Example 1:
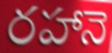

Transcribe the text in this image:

రహానె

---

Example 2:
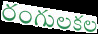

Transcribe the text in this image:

రంగులకల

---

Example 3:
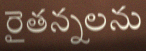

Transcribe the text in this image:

రైతన్నలను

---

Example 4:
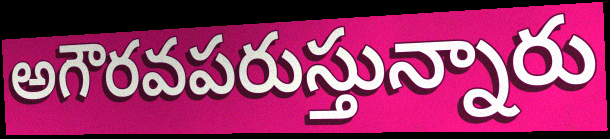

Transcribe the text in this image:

అగౌరవపరుస్తున్నారు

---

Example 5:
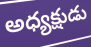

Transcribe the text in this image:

అధ్యక్షుడు